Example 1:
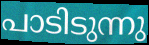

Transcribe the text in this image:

പാടിടുന്നു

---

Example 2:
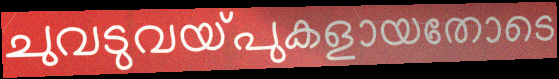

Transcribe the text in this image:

ചുവടുവയ്‌പുകളായതോടെ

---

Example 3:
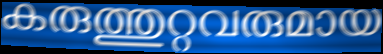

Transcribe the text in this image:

കരുത്തുറ്റവരുമായ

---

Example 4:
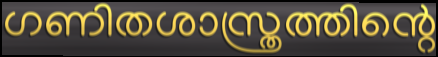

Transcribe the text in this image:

ഗണിതശാസ്ത്രത്തിന്റെ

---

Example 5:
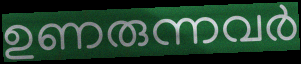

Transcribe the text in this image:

ഉണരുന്നവർ